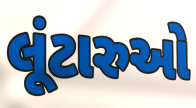
લૂંટારુઓ